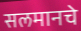
सलमानचे